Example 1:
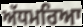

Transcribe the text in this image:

ਅੱਧਮਰਿਆ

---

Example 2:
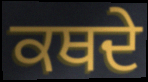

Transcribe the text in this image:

ਕਥਦੇ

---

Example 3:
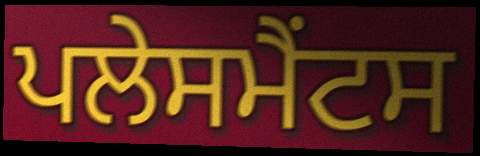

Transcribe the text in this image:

ਪਲੇਸਮੈਂਟਸ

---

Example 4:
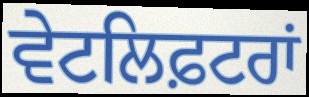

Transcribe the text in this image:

ਵੇਟਲਿਫ਼ਟਰਾਂ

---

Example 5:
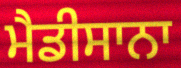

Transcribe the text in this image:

ਮੈਡੀਸਾਨਾ